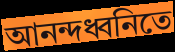
আনন্দধ্বনিতে